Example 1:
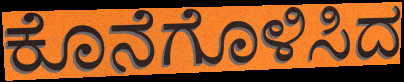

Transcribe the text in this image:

ಕೊನೆಗೊಳಿಸಿದ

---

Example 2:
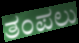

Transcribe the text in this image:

ತಂಪಲು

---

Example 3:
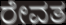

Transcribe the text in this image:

ರೇವತ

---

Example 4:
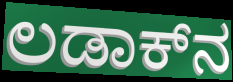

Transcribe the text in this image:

ಲಡಾಕ್‌ನ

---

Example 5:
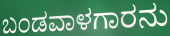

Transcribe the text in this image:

ಬಂಡವಾಳಗಾರನು